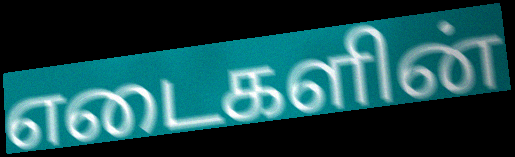
எடைகளின்